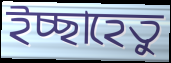
ইচ্ছাহেতু